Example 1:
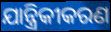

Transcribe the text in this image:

ଯାନ୍ତ୍ରିକୀକରଣ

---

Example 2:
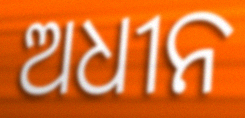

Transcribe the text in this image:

ଅଧୀନ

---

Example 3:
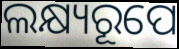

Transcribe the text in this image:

ଲକ୍ଷ୍ୟରୂପେ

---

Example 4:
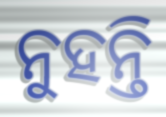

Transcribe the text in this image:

ନୁହନ୍ତି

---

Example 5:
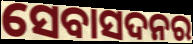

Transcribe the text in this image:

ସେବାସଦନର